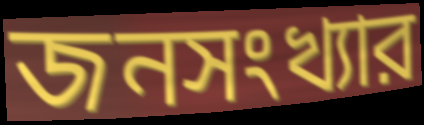
জনসংখ্যার